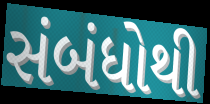
સંબંધોથી